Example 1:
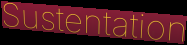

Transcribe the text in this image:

Sustentation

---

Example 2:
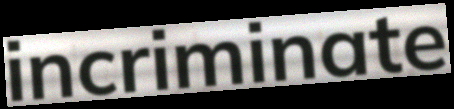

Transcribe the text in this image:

incriminate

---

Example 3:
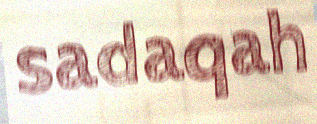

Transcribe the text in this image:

sadaqah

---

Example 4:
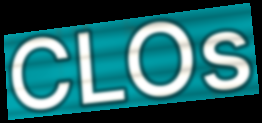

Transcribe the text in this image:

CLOs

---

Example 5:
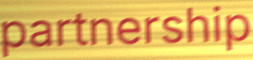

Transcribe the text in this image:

partnership